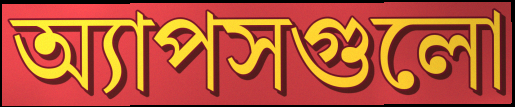
অ্যাপসগুলো